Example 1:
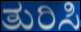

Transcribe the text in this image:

ತುರಿಸಿ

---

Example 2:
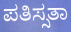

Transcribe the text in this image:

ಪತಿಸ್ಸತಾ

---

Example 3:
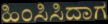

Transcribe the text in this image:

ಹಿಂಸಿಸಿದಾಗ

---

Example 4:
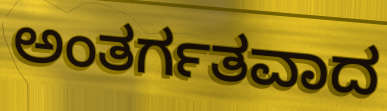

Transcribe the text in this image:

ಅಂತರ್ಗತವಾದ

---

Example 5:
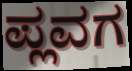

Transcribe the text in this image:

ಪ್ಲವಗ